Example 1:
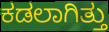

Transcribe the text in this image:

ಕಡಲಾಗಿತ್ತು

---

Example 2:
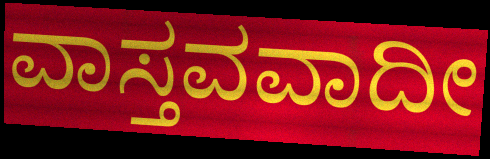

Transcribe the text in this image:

ವಾಸ್ತವವಾದೀ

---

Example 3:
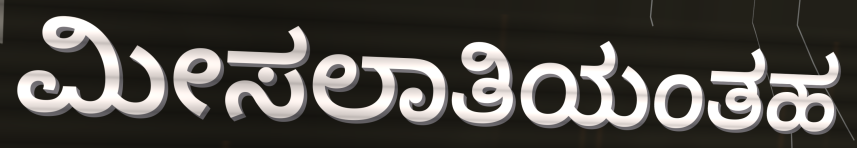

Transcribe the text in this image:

ಮೀಸಲಾತಿಯಂತಹ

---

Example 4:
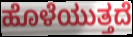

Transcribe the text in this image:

ಹೊಳೆಯುತ್ತದೆ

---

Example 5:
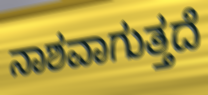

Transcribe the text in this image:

ನಾಶವಾಗುತ್ತದೆ